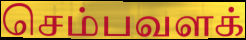
செம்பவளக்